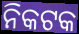
ନିକଟକ